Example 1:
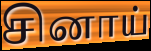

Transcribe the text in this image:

சினாய்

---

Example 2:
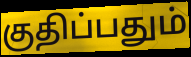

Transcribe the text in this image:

குதிப்பதும்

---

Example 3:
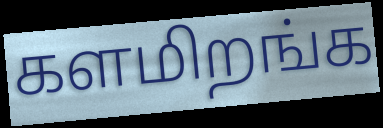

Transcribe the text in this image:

களமிறங்க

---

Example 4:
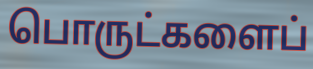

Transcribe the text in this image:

பொருட்களைப்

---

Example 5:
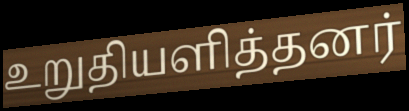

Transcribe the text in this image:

உறுதியளித்தனர்